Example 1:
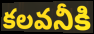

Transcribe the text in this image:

కలవనీకి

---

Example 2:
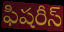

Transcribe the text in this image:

ఫిషరీస్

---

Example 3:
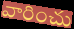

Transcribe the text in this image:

వారించు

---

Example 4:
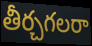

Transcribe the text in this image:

తీర్చగలరా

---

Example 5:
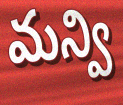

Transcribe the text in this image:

మన్వి